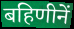
बहिणीनें